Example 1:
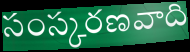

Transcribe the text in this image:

సంస్కరణవాది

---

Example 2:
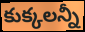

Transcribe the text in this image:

కుక్కలన్నీ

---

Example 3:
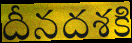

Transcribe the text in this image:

దీనదశకి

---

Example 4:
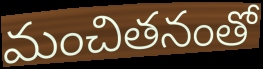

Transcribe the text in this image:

మంచితనంతో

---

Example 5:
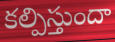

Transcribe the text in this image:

కల్పిస్తుందా